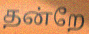
தன்றே